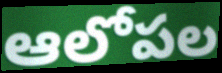
ఆలోపల